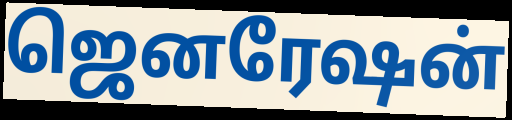
ஜெனரேஷன்